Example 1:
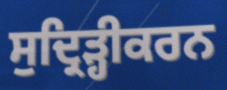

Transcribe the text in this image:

ਸੁਦ੍ਰਿੜ੍ਹੀਕਰਨ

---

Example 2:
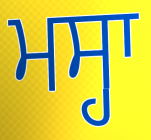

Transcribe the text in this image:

ਮਸ੍ਹਾ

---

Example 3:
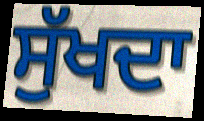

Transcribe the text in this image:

ਸੁੱਖਦਾ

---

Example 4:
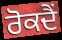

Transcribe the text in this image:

ਰੋਕਦੈਂ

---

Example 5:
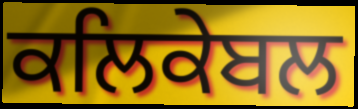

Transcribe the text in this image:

ਕਲਿਕੇਬਲ